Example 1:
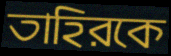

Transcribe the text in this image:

তাহিরকে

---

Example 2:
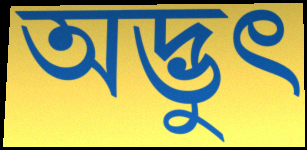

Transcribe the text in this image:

অদ্ভুৎ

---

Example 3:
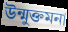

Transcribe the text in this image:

উন্মুক্তমনা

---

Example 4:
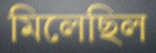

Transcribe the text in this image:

মিলেছিল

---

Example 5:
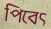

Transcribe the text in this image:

পিবেৎ